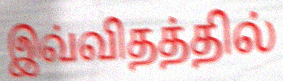
இவ்விதத்தில்